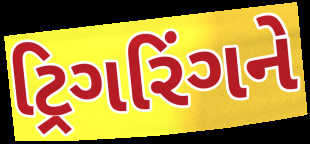
ટ્રિગરિંગને